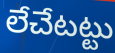
లేచేటట్టు